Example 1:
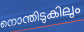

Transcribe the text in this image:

നൊന്തിടുകിലും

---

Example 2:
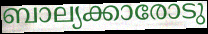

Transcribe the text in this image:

ബാല്യക്കാരോടു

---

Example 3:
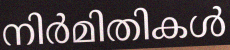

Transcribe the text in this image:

നിർമിതികൾ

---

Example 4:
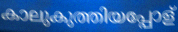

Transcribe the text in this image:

കാലുകുത്തിയപ്പോള്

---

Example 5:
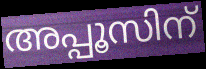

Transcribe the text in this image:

അപ്പൂസിന്